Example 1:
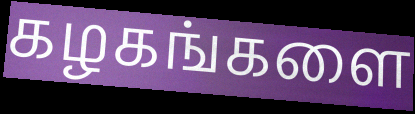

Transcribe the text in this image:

கழகங்களை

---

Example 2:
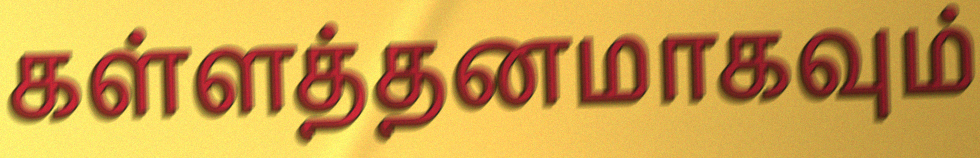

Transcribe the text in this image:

கள்ளத்தனமாகவும்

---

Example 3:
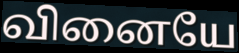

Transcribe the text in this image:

வினையே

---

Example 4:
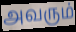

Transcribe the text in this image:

அவரும்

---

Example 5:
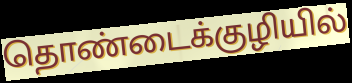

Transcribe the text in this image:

தொண்டைக்குழியில்